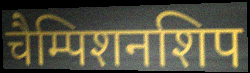
चैम्पिशनशिप